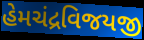
હેમચંદ્રવિજયજી